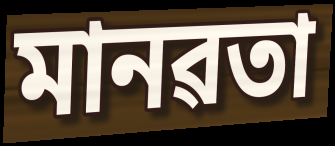
মানৱতা